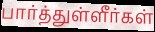
பார்த்துள்ளீர்கள்